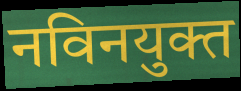
नविनयुक्त